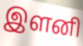
இளனி